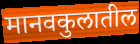
मानवकुलातील